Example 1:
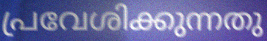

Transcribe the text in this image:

പ്രവേശിക്കുന്നതു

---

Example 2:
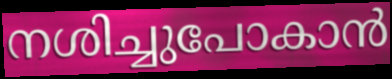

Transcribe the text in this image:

നശിച്ചുപോകാൻ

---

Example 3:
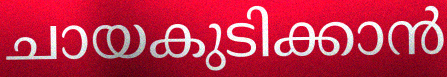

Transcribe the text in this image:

ചായകുടിക്കാൻ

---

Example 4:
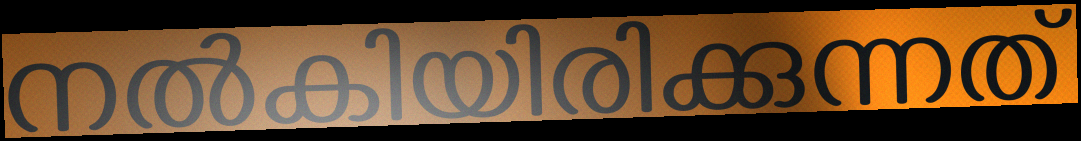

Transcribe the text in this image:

നൽകിയിരിക്കുന്നത്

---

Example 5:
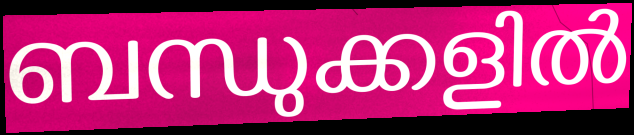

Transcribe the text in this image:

ബന്ധുക്കളിൽ